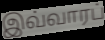
இவ்வாரப்